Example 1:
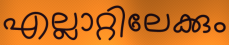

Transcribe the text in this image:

എല്ലാറ്റിലേക്കും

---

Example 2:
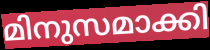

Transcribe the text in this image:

മിനുസമാക്കി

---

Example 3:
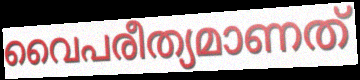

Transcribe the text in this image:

വൈപരീത്യമാണത്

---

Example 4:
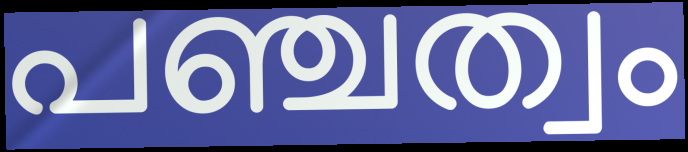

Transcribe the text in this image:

പഞ്ചത്വം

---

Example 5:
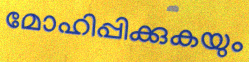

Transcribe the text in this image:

മോഹിപ്പിക്കുകയും